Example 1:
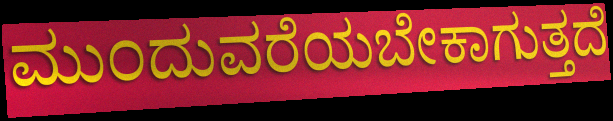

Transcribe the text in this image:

ಮುಂದುವರೆಯಬೇಕಾಗುತ್ತದೆ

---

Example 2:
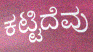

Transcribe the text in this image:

ಕಟ್ಟಿದೆವು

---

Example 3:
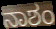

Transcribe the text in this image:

ನಾಶಂ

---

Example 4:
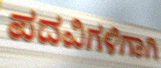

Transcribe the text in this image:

ಪದವಿಗಳಿಗಾಗಿ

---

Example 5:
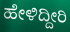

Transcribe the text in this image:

ಹೇಳಿದ್ದೀರಿ